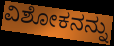
ವಿಶೋಕನನ್ನು